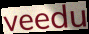
veedu